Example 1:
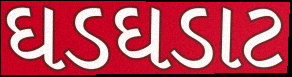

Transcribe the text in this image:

ઘડઘડાટ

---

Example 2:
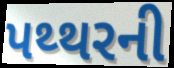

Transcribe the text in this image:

પથ્થરની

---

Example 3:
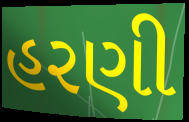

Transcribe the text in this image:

હરણી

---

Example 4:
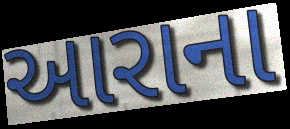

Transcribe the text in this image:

આરાના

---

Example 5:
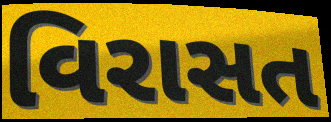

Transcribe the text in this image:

વિરાસત